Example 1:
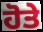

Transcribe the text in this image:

ਹੋਤੇ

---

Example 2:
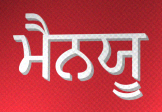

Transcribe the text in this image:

ਮੈਨਯੂ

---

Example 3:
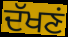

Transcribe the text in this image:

ਦੱਖਣਂ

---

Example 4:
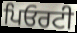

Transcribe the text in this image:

ਪਿਓਰਟੀ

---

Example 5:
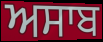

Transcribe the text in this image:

ਅਸਾਬ